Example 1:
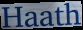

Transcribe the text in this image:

Haath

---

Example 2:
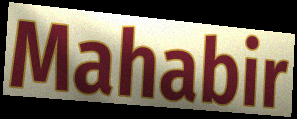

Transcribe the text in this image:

Mahabir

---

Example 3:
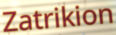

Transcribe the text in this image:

Zatrikion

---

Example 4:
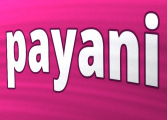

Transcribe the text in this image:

payani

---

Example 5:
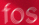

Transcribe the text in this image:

fos